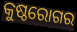
କୁଷ୍ଠରୋଗର